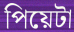
পিয়েটা